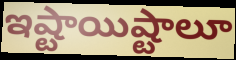
ఇష్టాయిష్టాలూ